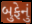
બુફેનું